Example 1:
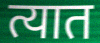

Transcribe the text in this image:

त्यात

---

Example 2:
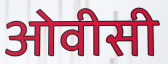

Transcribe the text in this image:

ओवीसी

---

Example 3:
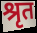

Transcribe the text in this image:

श्रृत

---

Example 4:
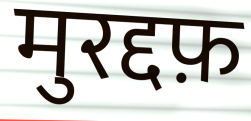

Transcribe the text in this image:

मुरद्दफ़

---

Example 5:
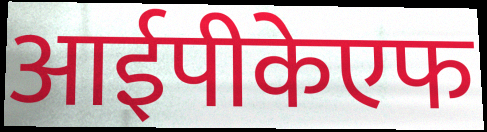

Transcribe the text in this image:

आईपीकेएफ